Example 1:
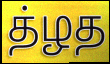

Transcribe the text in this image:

த்ழத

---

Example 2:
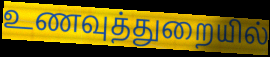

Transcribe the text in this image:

உணவுத்துறையில்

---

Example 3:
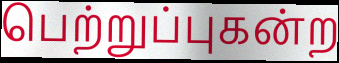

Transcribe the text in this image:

பெற்றுப்புகன்ற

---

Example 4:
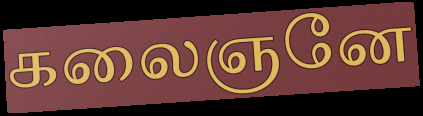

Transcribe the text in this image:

கலைஞனே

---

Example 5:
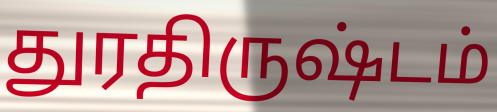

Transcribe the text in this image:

துரதிருஷ்டம்